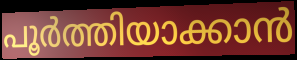
പൂർത്തിയാക്കാൻ